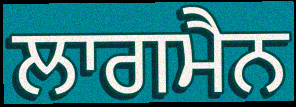
ਲਾਗਮੈਨ